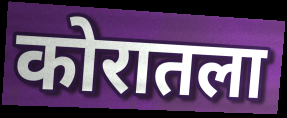
कोरातला